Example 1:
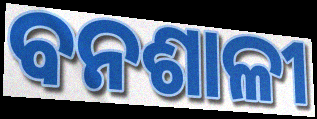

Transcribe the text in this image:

ବନଶାଳୀ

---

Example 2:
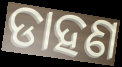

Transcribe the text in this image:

ଡାହଣ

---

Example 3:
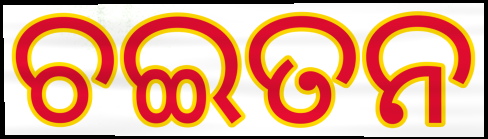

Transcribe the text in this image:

ଚଇତନ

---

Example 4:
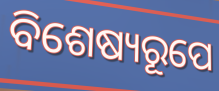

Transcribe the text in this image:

ବିଶେଷ୍ୟରୂପେ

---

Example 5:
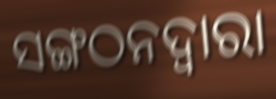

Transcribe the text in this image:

ସଙ୍ଗଠନଦ୍ୱାରା